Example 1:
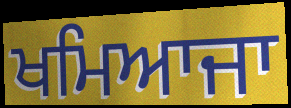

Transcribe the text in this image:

ਖਮਿਆਜਾ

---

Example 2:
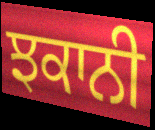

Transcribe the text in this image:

ਝਕਾਨੀ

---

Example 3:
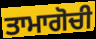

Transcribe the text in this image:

ਤਾਮਾਗੋਚੀ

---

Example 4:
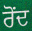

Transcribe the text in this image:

ਰੋਂਦ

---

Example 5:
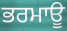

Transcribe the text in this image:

ਭਰਮਾਊ